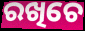
ରଖିଚେ